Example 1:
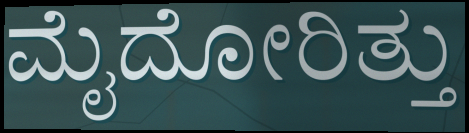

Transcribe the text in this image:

ಮೈದೋರಿತ್ತು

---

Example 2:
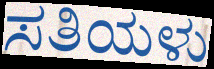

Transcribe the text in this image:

ಸತಿಯಳು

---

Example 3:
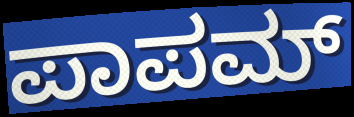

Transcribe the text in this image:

ಪಾಪಮ್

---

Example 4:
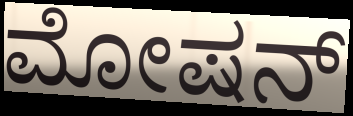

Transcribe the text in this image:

ಮೋಷನ್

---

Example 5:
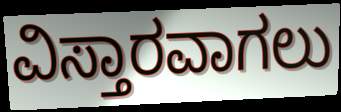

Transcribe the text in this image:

ವಿಸ್ತಾರವಾಗಲು